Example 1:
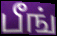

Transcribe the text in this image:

பீங்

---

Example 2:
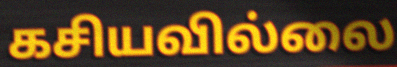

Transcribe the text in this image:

கசியவில்லை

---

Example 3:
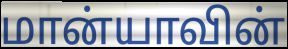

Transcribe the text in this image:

மான்யாவின்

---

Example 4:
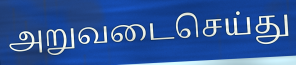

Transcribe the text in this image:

அறுவடைசெய்து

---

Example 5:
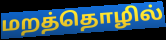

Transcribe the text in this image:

மறத்தொழில்